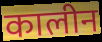
कालीन